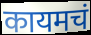
कायमचं